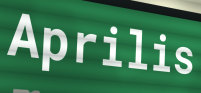
Aprilis